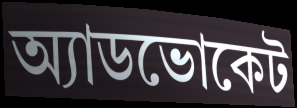
অ্যাডভোকেট